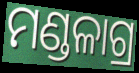
ମଣ୍ଡଳାଗ୍ର